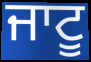
ਜਾਟੂ